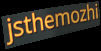
jsthemozhi